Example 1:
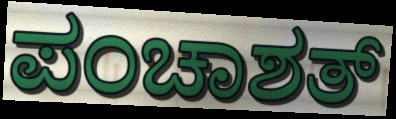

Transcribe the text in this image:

ಪಂಚಾಶತ್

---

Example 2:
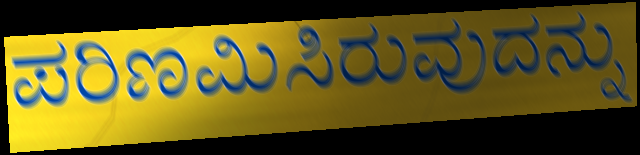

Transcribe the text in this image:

ಪರಿಣಮಿಸಿರುವುದನ್ನು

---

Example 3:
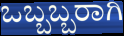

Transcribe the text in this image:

ಒಬ್ಬಬ್ಬರಾಗಿ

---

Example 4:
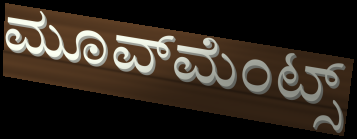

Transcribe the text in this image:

ಮೂವ್‌ಮೆಂಟ್ಸ್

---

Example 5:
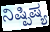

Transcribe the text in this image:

ನಿಷ್ಪಿಷ್ಯ